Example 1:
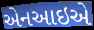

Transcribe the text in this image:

એનઆઇએ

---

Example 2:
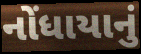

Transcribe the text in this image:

નોંધાયાનું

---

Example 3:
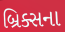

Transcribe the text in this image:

બ્રિક્સના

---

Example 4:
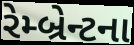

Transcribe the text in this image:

રેમ્બ્રેન્ટના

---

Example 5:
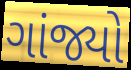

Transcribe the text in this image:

ગાંજ્યો